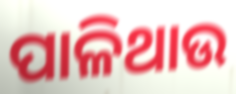
ପାଳିଥାଉ